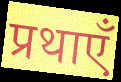
प्रथाएँ